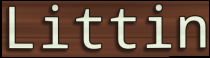
Littin